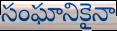
సంఘానికైనా